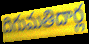
దిగుమతిదార్ల